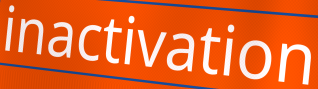
inactivation